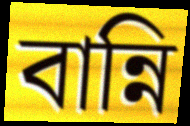
বান্নি